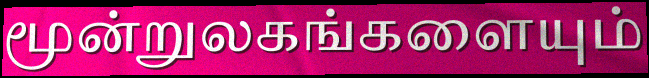
மூன்றுலகங்களையும்